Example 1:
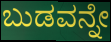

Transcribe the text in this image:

ಬುಡವನ್ನೇ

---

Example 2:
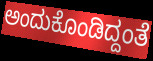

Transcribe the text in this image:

ಅಂದುಕೊಂಡಿದ್ದಂತೆ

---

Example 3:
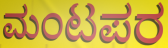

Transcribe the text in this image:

ಮಂಟಪರ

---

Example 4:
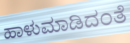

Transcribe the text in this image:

ಹಾಳುಮಾಡಿದಂತೆ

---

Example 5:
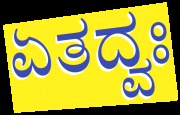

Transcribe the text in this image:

ಏತದ್ವಃ